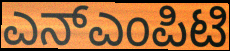
ಎನ್ಎಂಪಿಟಿ